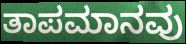
ತಾಪಮಾನವು